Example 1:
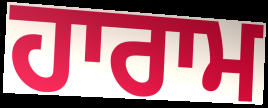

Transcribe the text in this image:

ਹਾਰਾਮ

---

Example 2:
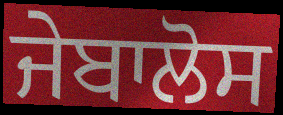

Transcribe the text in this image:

ਜੇਬਾਲੋਸ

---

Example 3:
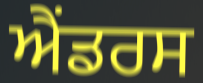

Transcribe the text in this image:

ਐਂਡਰਸ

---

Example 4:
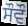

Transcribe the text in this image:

ਸੌਵੌ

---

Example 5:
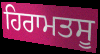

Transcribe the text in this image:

ਹਿਰਾਮਤਸੂ